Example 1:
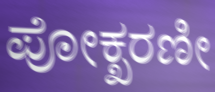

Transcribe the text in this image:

ಪೋಕ್ಖರಣೀ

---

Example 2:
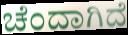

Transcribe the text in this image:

ಚೆಂದಾಗಿದೆ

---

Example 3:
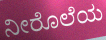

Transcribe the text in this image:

ನೀರೊಲೆಯ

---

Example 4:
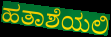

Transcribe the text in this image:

ಹತಾಶೆಯಲಿ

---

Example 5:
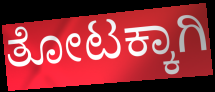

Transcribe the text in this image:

ತೋಟಕ್ಕಾಗಿ